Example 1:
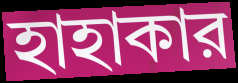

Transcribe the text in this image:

হাহাকার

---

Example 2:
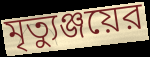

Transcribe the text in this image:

মৃত্যুঞ্জয়ের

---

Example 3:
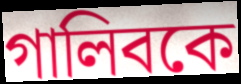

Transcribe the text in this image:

গালিবকে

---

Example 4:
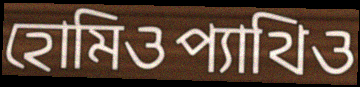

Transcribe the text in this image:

হোমিওপ্যাথিও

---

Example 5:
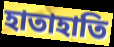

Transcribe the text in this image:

হাতাহাতি